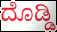
ದೊಡ್ಡಿ